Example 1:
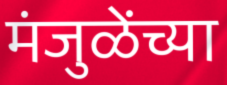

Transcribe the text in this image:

मंजुळेंच्या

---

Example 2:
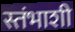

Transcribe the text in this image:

स्तंभाशी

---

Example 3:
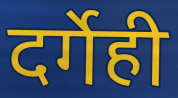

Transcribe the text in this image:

दर्गेही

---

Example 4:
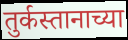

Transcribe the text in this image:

तुर्कस्तानाच्या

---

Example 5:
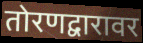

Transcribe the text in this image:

तोरणद्वारावर